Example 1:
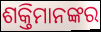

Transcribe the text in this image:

ଶକ୍ତିମାନଙ୍କର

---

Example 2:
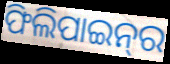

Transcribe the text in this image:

ଫିଲିପାଇନ୍‌ର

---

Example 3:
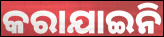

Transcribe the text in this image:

କରାଯାଇନି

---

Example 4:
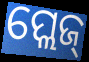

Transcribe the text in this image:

ପ୍ଲେଜ୍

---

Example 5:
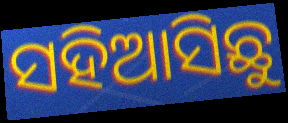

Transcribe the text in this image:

ସହିଆସିଛୁ